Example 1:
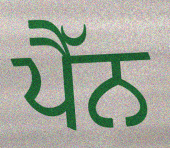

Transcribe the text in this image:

ਪੈੱਨ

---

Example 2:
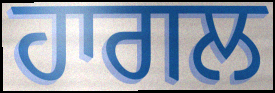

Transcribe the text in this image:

ਹਾਗਲ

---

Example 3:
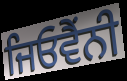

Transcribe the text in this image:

ਜਿਓਵੈਂਨੀ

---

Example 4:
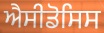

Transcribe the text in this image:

ਐਸੀਡੋਸਿਸ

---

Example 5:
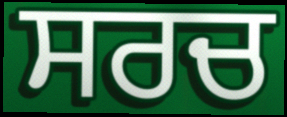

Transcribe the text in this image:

ਸਰਚ